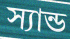
স্যান্ড